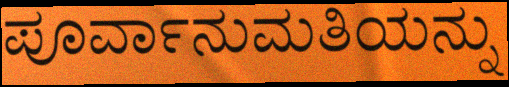
ಪೂರ್ವಾನುಮತಿಯನ್ನು